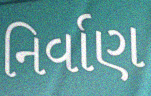
નિર્વાણ